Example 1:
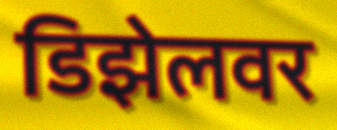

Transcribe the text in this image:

डिझेलवर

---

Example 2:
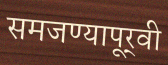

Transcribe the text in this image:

समजण्यापूर्वी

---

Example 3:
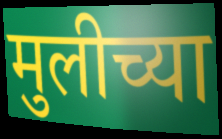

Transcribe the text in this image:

मुलीच्‍या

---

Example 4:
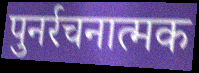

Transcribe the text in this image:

पुनर्रचनात्मक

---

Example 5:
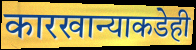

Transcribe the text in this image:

कारखान्याकडेही